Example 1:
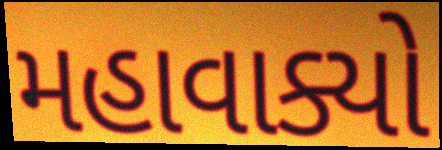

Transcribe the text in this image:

મહાવાક્યો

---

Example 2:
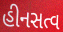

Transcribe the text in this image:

હીનસત્વ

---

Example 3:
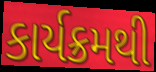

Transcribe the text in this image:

કાર્યક્રમથી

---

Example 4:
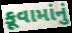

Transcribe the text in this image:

કૂવામાંનું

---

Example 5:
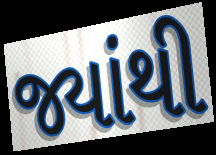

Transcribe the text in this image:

જ્યાંથી